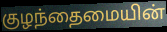
குழந்தைமையின்